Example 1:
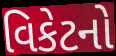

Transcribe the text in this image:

વિકેટનો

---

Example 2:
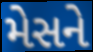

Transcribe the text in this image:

મેસને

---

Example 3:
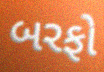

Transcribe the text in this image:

બરફો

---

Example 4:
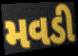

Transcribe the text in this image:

મવડી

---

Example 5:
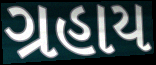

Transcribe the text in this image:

ગ્રહાય